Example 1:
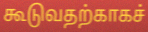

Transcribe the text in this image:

கூடுவதற்காகச்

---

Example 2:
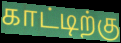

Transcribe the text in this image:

காட்டிற்கு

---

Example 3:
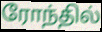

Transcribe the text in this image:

ரோந்தில்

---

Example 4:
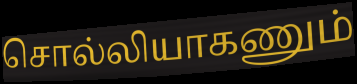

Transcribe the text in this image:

சொல்லியாகணும்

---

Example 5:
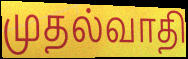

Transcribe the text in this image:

முதல்வாதி